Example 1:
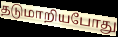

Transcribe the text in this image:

தடுமாறியபோது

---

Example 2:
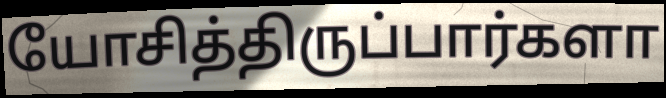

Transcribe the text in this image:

யோசித்திருப்பார்களா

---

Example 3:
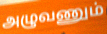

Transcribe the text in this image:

அழுவணும்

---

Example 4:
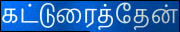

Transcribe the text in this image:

கட்டுரைத்தேன்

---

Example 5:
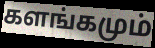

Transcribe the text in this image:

களங்கமும்